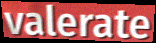
valerate